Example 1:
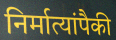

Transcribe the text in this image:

निर्मात्यांपैकी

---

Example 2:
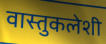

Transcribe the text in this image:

वास्तुकलेशी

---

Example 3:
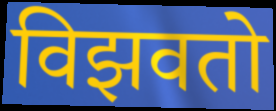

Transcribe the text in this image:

विझवतो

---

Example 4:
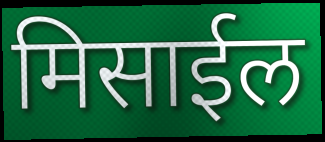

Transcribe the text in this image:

मिसाईल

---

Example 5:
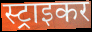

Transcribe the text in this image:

स्ट्राइकर